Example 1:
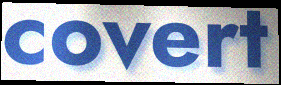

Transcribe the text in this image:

covert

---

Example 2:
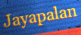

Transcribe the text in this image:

Jayapalan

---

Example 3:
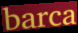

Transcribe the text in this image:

barca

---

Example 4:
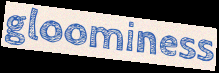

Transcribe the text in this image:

gloominess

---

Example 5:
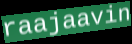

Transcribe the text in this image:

raajaavin